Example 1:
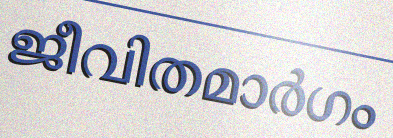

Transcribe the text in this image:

ജീവിതമാർഗം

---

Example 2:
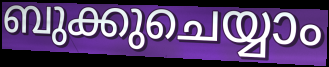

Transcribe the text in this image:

ബുക്കുചെയ്യാം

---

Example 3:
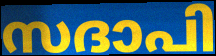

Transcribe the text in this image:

സദാപി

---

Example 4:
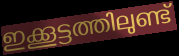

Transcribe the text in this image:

ഇക്കൂട്ടത്തിലുണ്ട്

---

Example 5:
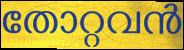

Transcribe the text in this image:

തോറ്റവൻ